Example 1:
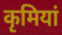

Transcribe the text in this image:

कृमियां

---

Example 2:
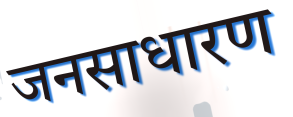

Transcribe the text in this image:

जनसाधारण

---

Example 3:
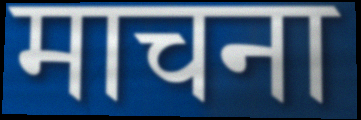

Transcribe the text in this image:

माचना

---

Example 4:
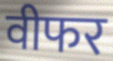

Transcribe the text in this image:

वीफर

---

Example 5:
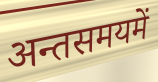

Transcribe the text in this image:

अन्तसमयमें